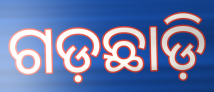
ଗଡ଼ଛାଡ଼ି